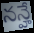
నన్హే